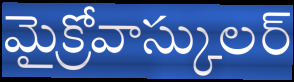
మైక్రోవాస్కులర్